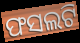
ଫସଲଟି